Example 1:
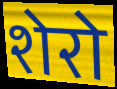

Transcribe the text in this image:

शेरो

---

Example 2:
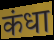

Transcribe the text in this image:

कंधा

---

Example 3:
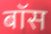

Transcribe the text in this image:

बॉस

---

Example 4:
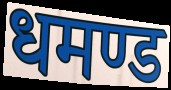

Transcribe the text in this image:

धमण्ड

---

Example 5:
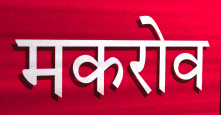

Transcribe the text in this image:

मकरोव